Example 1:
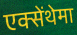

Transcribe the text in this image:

एक्सेंथेमा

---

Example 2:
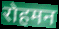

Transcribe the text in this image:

रोहमन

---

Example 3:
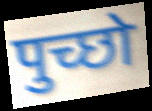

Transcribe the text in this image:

पुच्छो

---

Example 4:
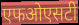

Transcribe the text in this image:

एफओएसटी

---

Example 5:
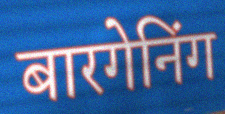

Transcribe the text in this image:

बारगेनिंग